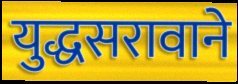
युद्धसरावाने